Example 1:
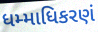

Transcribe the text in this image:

ધમ્માધિકરણં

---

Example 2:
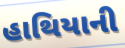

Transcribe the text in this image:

હાથિયાની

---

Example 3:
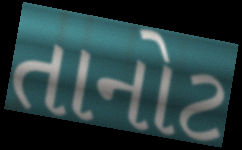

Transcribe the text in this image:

તાનોટ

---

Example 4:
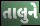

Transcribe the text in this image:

તાલુને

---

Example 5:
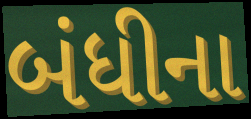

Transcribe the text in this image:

બંધીના